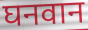
घनवान